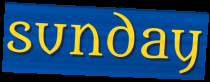
sunday